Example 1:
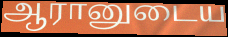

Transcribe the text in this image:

ஆரானுடைய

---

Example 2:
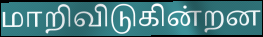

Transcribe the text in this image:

மாறிவிடுகின்றன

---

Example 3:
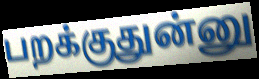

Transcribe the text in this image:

பறக்குதுன்னு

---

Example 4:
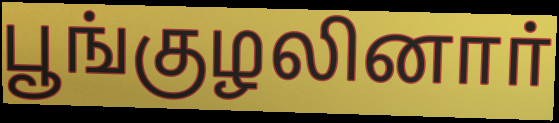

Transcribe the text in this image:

பூங்குழலினார்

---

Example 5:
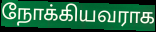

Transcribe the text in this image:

நோக்கியவராக